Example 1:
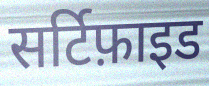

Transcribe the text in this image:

सर्टिफ़ाइड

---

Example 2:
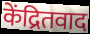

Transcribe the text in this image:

केंद्रितवाद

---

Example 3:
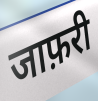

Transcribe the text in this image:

जाफ़री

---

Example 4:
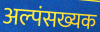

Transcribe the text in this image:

अल्पंसख्यक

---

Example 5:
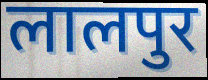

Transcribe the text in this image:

लालपुर